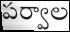
పర్వాల